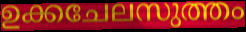
ഉക്കചേലസുത്തം